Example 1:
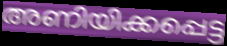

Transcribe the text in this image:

അണിയിക്കപ്പെട്ട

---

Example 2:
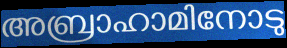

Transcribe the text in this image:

അബ്രാഹാമിനോടു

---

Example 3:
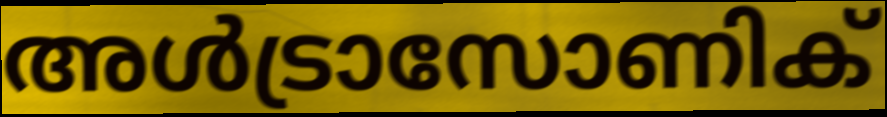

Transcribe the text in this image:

അൾട്രാസോണിക്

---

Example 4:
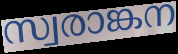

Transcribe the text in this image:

സ്വരാങ്കന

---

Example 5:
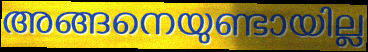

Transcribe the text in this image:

അങ്ങനെയുണ്ടായില്ല